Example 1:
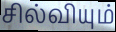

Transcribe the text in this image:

சில்வியும்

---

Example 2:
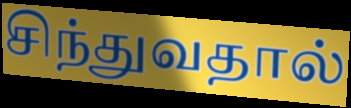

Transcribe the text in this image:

சிந்துவதால்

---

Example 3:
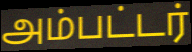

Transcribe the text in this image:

அம்பட்டர்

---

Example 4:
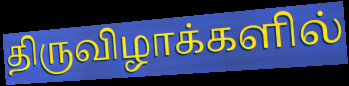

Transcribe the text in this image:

திருவிழாக்களில்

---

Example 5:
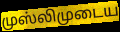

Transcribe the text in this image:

முஸ்லிமுடைய